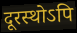
दूरस्थोऽपि